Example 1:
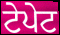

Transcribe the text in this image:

ਟੇਪੇਟ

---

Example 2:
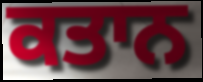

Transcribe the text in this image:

ਕਤਾਨ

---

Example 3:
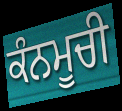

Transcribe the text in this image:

ਕੰਨਮੂਚੀ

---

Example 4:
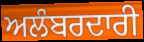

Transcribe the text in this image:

ਅਲੰਬਰਦਾਰੀ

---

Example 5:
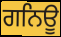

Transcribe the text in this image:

ਗਨਿਊ